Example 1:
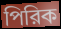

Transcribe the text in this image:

পিরিক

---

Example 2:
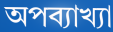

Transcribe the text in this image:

অপব্যাখ্যা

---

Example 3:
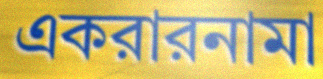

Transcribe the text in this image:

একরারনামা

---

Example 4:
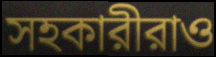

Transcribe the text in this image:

সহকারীরাও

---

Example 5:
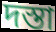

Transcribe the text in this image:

দস্তা